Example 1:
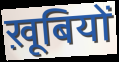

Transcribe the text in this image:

ख़ूबियों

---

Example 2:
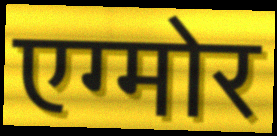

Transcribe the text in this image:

एग्मोर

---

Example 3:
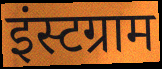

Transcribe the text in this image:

इंस्टग्राम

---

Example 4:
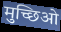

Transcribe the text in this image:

मुच्छिओ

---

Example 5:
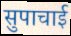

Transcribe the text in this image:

सुपाचाई